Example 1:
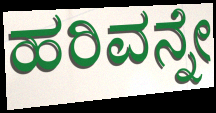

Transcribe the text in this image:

ಹರಿವನ್ನೇ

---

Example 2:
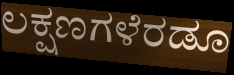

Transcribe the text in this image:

ಲಕ್ಷಣಗಳೆರಡೂ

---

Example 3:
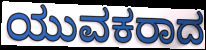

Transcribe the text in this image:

ಯುವಕರಾದ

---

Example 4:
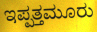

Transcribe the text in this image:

ಇಪ್ಪತ್ತಮೂರು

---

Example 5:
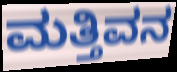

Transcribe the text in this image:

ಮತ್ತಿವನ